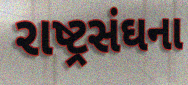
રાષ્ટ્રસંઘના